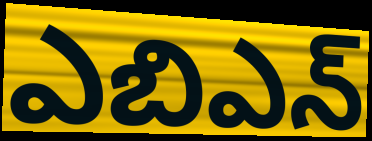
ఎబిఎన్